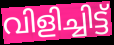
വിളിച്ചിട്ട്